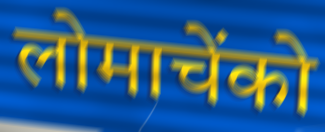
लोमाचेंको